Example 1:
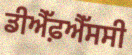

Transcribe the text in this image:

ਡੀਐੱਫ਼ਐੱਸਸੀ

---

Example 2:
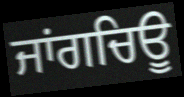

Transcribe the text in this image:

ਜਾਂਗਚਿਊ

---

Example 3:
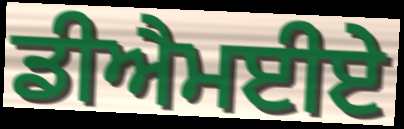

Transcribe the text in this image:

ਡੀਐਮਈਏ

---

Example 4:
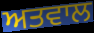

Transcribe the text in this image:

ਅਤਵਾਲ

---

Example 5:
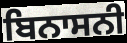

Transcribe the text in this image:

ਬਿਨਾਸਨੀ